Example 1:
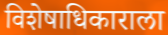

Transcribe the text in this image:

विशेषाधिकाराला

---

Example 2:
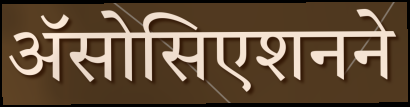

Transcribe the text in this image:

ॲसोसिएशनने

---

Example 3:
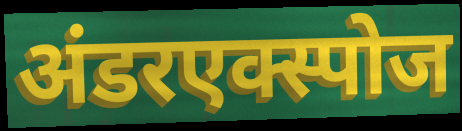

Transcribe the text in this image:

अंडरएक्स्पोज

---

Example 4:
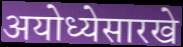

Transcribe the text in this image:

अयोध्येसारखे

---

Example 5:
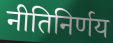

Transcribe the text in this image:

नीतिनिर्णय